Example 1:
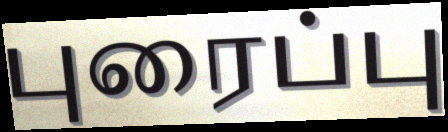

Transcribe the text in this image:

புரைப்பு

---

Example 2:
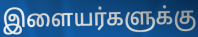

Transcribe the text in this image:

இளையர்களுக்கு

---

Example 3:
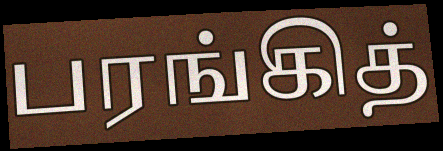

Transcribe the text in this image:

பரங்கித்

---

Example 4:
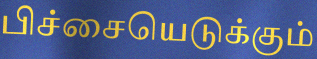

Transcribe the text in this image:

பிச்சையெடுக்கும்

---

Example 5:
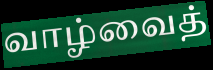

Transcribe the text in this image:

வாழ்வைத்